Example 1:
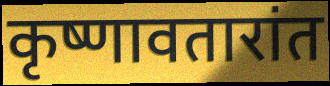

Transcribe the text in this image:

कृष्णावतारांत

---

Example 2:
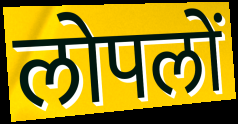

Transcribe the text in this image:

लोपलों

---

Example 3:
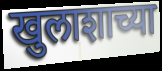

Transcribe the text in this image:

खुलाशाच्या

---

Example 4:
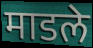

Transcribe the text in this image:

माडले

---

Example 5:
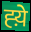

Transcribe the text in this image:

ह्य़े